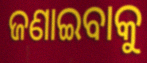
ଜଣାଇବାକୁ